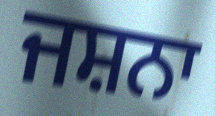
ਜਸ਼ਨਾ